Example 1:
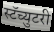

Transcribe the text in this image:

स्टॅच्युटरी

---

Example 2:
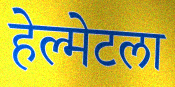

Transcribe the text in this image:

हेल्मेटला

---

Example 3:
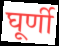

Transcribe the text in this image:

घूर्णी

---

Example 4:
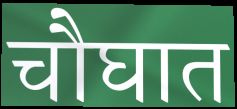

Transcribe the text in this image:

चौघात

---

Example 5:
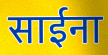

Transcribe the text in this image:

साईना